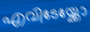
എവിടേയ്ക്കോ